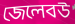
জেলেবউ